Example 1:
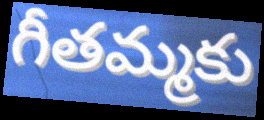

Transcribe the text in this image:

గీతమ్మకు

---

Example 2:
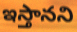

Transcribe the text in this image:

ఇస్తానని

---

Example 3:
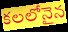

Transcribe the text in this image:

కలలోనైన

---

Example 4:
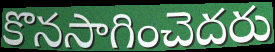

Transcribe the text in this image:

కొనసాగించెదరు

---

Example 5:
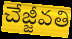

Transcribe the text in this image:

చేజ్జీవతి